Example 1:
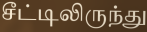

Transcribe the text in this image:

சீட்டிலிருந்து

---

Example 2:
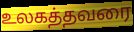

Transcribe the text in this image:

உலகத்தவரை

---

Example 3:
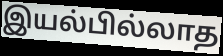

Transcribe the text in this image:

இயல்பில்லாத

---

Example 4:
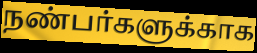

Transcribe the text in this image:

நண்பர்களுக்காக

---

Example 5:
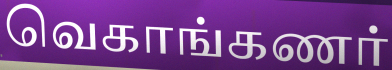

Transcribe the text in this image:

வெகாங்கணர்